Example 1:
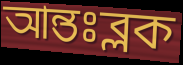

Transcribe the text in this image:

আন্তঃব্লক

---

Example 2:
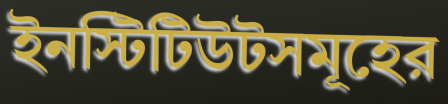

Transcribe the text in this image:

ইনস্টিটিউটসমূহের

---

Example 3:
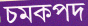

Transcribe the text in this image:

চমকপদ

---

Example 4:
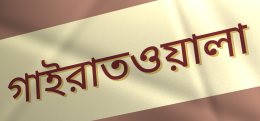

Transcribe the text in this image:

গাইরাতওয়ালা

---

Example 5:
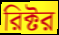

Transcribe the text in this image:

রিক্টর